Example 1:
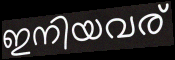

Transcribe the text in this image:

ഇനിയവര്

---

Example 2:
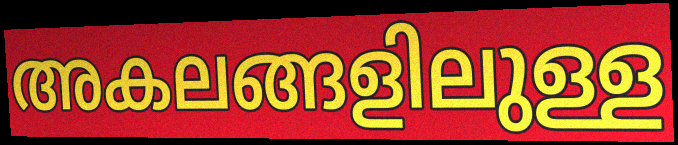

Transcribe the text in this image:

അകലങ്ങളിലുള്ള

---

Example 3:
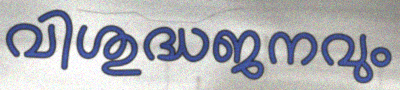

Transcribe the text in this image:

വിശുദ്ധജനവും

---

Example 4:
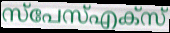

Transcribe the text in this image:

സ്പേസ്എക്സ്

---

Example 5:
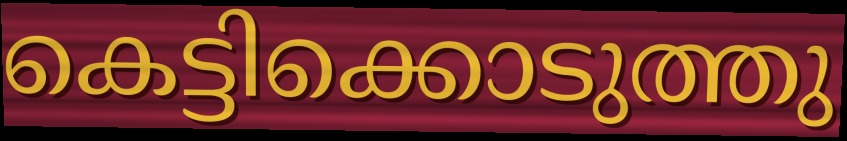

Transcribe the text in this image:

കെട്ടിക്കൊടുത്തു